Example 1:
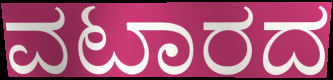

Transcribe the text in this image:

ವಟಾರದ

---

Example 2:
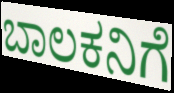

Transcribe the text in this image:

ಬಾಲಕನಿಗೆ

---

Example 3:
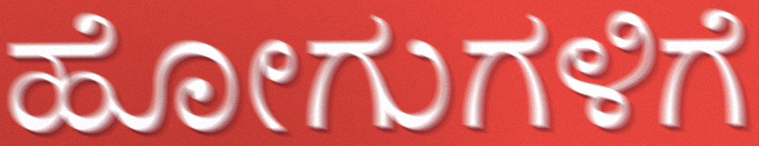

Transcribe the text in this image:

ಹೋಗುಗಳಿಗೆ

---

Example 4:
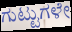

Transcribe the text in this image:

ಗುಟ್ಟುಗಳೇ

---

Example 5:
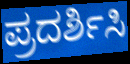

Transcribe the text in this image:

ಪ್ರದರ್ಶಿಸಿ